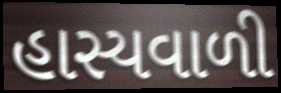
હાસ્યવાળી